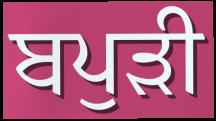
ਬਪੁੜੀ